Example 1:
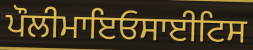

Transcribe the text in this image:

ਪੌਲੀਮਾਇਓਸਾਈਟਿਸ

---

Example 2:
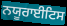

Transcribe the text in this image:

ਨਯੂਰਾਈਟਿਸ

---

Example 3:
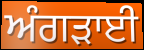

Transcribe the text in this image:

ਅੰਗੜਾਈ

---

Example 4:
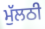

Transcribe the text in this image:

ਮੁੱਲਠੀ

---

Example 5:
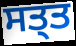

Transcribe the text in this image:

ਸਤ੍ਤ